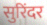
सुरिंदर